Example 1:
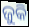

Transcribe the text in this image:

ଜୁକି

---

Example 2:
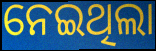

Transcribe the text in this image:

ନେଇଥିଲା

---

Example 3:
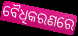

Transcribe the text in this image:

ବୈଧିକରଣରେ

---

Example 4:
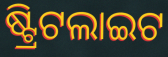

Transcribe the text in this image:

ଷ୍ଟ୍ରିଟଲାଇଟ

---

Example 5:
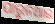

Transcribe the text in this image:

ପାରୁନଥାଉ